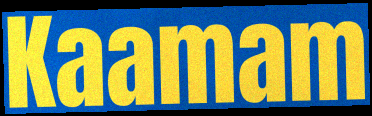
Kaamam